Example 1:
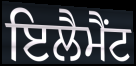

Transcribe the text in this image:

ਇਲੈਮੈਂਟ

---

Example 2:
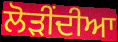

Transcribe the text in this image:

ਲੋੜੀਂਦੀਆ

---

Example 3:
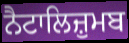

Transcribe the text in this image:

ਨੈਟਾਲਿਜ਼ੁਮਬ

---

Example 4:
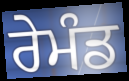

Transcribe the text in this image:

ਰੇਮੰਡ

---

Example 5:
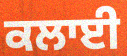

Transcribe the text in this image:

ਕਲਾਈ